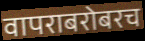
वापराबरोबरच